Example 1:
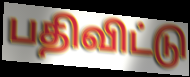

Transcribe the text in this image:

பதிவிட்டு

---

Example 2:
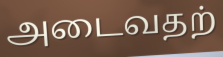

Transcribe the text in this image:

அடைவதற்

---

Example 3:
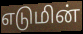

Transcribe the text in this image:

எடுமின்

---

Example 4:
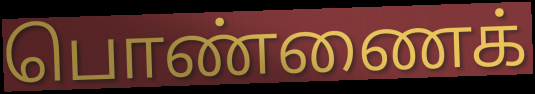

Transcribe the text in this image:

பொண்ணைக்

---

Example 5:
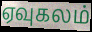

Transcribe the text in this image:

ஏவுகலம்